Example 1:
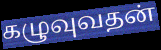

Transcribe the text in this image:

கழுவுவதன்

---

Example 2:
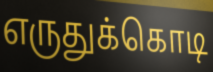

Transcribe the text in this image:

எருதுக்கொடி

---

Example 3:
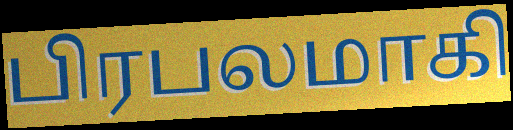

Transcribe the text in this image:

பிரபலமாகி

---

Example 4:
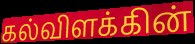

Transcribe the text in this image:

கல்விளக்கின்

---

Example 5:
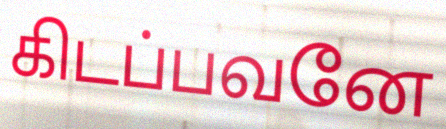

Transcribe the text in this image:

கிடப்பவனே